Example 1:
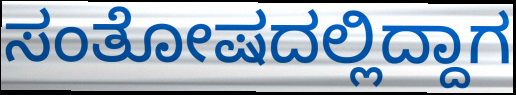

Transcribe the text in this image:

ಸಂತೋಷದಲ್ಲಿದ್ದಾಗ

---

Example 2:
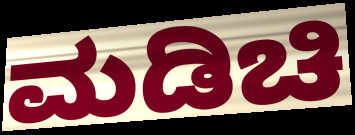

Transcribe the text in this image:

ಮಡಿಚಿ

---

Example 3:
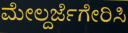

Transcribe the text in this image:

ಮೇಲ್ದರ್ಜೆಗೇರಿಸಿ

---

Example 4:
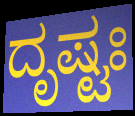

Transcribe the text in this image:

ದೃಷ್ಟಃ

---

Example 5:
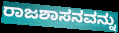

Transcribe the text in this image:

ರಾಜಶಾಸನವನ್ನು